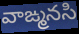
వాఙ్మనసి